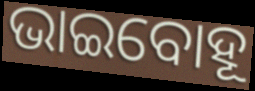
ଭାଇବୋହୂ